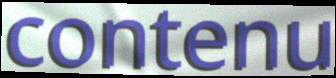
contenu